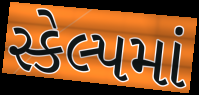
સ્કેલ્પમાં